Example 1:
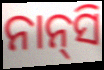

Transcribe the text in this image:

ନାନ୍‌ସି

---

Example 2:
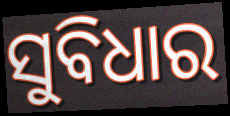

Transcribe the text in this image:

ସୁବିଧାର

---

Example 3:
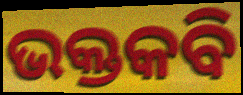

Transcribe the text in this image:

ଭକ୍ତକବି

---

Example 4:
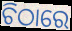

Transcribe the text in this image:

ଚିଠାରେ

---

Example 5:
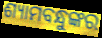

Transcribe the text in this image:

ଶ୍ୟାମବନ୍ଧୁଙ୍କର